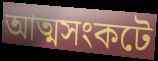
আত্মসংকটে